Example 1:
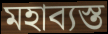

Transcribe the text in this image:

মহাব্যস্ত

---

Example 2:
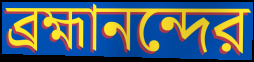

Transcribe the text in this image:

ব্রহ্মানন্দের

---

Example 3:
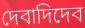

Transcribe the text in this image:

দেবাদিদেব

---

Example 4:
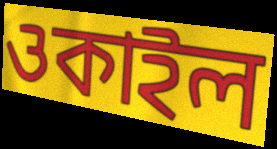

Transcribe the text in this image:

ওকাইল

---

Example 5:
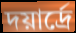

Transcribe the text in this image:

দয়ার্দ্রে